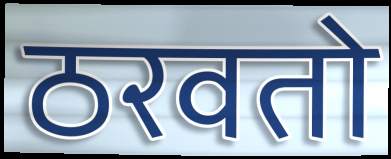
ठरवतो